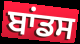
ਬਾਂਡਸ